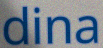
dina